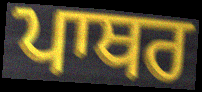
ਪਾਥਰ